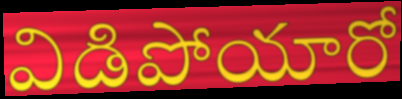
విడిపోయారో